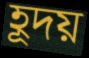
হূদয়